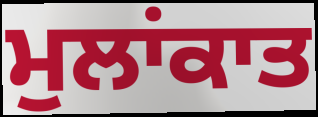
ਮੁਲਾਂਕਾਤ